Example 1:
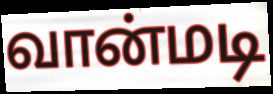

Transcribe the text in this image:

வான்மடி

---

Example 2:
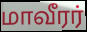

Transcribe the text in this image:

மாவீரர்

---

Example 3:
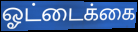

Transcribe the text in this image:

ஓட்டைக்கை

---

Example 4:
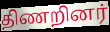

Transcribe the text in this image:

திணறினர்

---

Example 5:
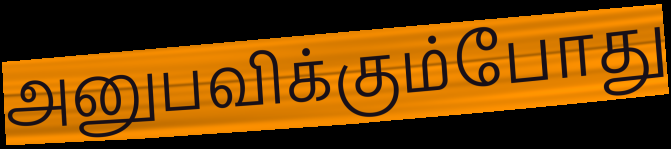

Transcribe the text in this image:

அனுபவிக்கும்போது